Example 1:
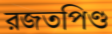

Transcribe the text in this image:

রজতপিণ্ড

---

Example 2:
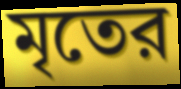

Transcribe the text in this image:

মৃতের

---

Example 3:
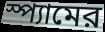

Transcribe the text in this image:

স্প্যামের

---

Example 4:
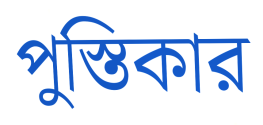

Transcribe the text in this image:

পুস্তিকার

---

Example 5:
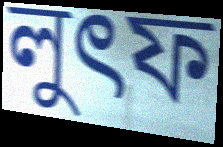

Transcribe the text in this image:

লুৎফ